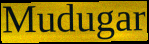
Mudugar